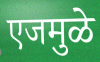
एजमुळे